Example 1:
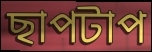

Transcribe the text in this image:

ছাপটাপ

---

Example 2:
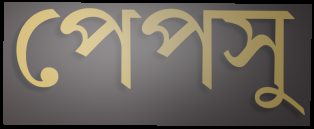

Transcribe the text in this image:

পেপসু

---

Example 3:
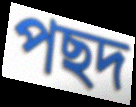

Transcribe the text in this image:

পছদ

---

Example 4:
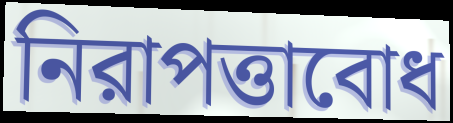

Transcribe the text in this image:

নিরাপত্তাবোধ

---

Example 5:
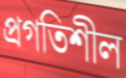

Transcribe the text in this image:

প্রগতিশীল